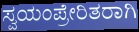
ಸ್ವಯಂಪ್ರೇರಿತರಾಗಿ